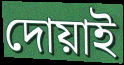
দোয়াই